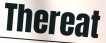
Thereat